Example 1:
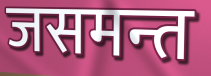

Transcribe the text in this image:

जसमन्त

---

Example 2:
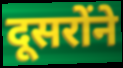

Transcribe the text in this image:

दूसरोंने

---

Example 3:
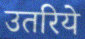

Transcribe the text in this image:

उतरिये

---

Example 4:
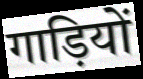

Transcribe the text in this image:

गाड़ियों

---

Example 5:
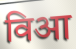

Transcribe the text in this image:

विआ